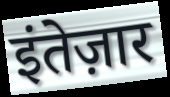
इंतेज़ार